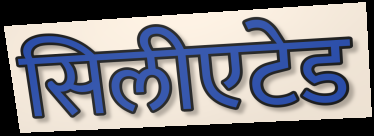
सिलीएटेड